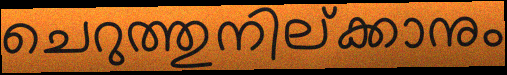
ചെറുത്തുനില്ക്കാനും